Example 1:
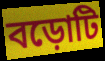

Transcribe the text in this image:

বড়োটি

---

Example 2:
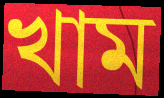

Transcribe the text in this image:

খাম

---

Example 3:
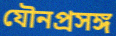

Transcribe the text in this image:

যৌনপ্রসঙ্গ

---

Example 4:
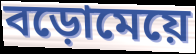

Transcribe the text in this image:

বড়োমেয়ে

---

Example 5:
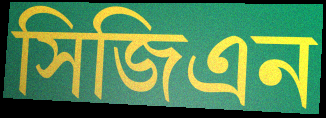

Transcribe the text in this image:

সিজিএন